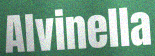
Alvinella